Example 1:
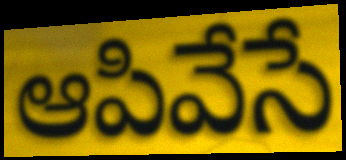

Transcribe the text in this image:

ఆపివేసే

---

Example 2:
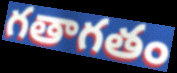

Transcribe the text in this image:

గతాగతం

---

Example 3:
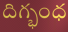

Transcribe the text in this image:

దిగ్భంధ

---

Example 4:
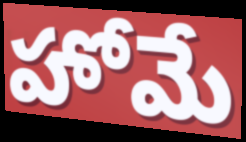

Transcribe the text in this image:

హోమే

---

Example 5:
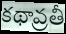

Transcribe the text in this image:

కథావ్రతీ